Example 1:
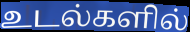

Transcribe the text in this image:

உடல்களில்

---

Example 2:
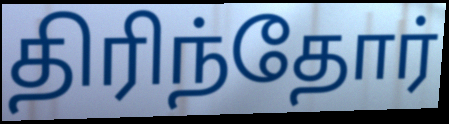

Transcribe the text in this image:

திரிந்தோர்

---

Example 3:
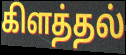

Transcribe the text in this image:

கிளத்தல்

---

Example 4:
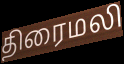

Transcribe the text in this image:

திரைமலி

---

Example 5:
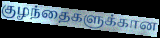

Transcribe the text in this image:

குழந்தைகளுக்கான